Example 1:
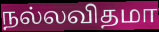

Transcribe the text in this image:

நல்லவிதமா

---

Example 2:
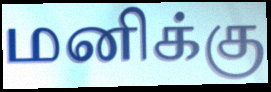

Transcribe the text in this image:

மனிக்கு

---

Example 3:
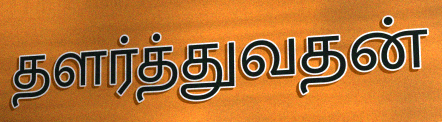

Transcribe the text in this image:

தளர்த்துவதன்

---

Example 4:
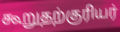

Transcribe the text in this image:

கூறுதற்குரியர்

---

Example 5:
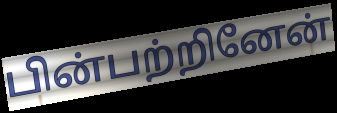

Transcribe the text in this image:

பின்பற்றினேன்